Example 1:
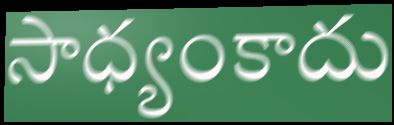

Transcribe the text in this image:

సాధ్యంకాదు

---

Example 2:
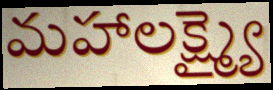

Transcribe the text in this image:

మహాలక్ష్మ్యై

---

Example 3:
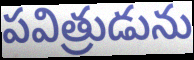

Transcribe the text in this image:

పవిత్రుడును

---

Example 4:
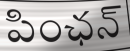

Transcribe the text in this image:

పింఛన్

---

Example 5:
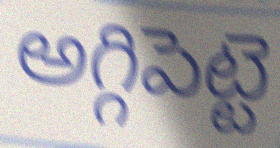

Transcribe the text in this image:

అగ్గిపెట్టె